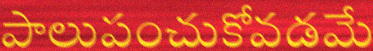
పాలుపంచుకోవడమే